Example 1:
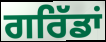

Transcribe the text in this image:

ਗਰਿੱਡਾਂ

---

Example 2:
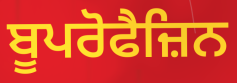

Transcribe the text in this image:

ਬੂਪਰੋਫੈਜ਼ਿਨ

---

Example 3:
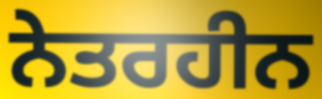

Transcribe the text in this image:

ਨੇਤਰਹੀਨ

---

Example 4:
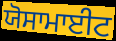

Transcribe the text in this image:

ਯੋਸਾਮਾਈਟ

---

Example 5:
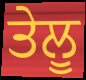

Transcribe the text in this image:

ਤੇਲੂ